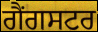
ਗੈਂਗਸਟਰ